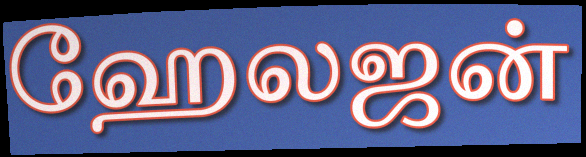
ஹேலஜன்